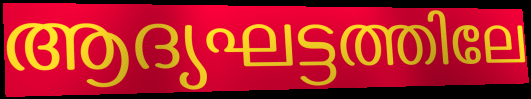
ആദ്യഘട്ടത്തിലേ